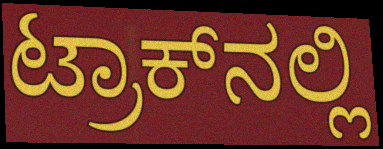
ಟ್ರಾಕ್‌ನಲ್ಲಿ